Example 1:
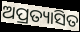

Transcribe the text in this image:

ଅପ୍ରତ୍ୟାସିତ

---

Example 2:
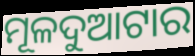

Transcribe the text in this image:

ମୂଳଦୁଆଟାର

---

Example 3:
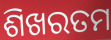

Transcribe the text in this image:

ଶିଖରତମ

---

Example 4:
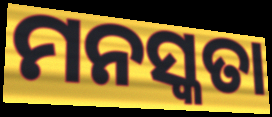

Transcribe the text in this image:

ମନସ୍କତା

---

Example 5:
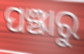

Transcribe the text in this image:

ପଞ୍ଝାରୁ